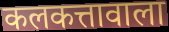
कलकत्तावाला